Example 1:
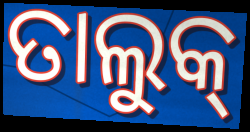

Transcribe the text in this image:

ତାଲୁକ୍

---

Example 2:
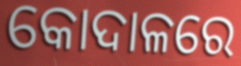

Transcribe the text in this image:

କୋଦାଳରେ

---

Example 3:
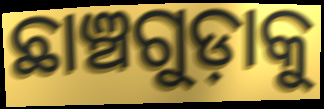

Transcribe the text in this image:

ଛାଞ୍ଚଗୁଡ଼ାକୁ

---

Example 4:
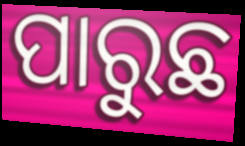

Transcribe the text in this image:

ପାରୁଛ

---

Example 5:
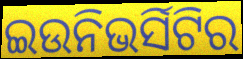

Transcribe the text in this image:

ଇଉନିଭର୍ସିଟିର